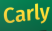
Carly